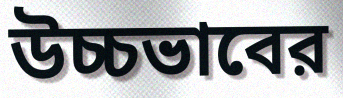
উচ্চভাবের